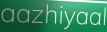
aazhiyaal